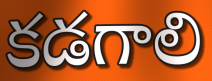
కడగాలి